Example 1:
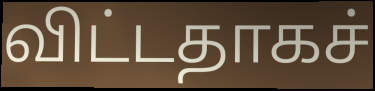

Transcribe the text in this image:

விட்டதாகச்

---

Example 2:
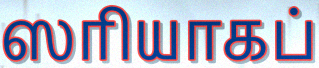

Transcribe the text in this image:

ஸரியாகப்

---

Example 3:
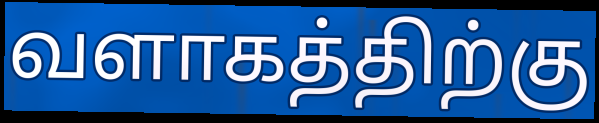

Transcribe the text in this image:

வளாகத்திற்கு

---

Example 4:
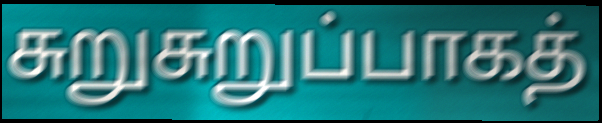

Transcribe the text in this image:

சுறுசுறுப்பாகத்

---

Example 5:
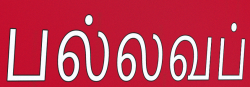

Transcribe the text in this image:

பல்லவப்